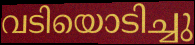
വടിയൊടിച്ചു